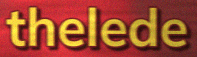
thelede